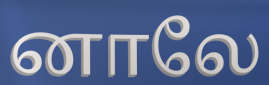
னாலே